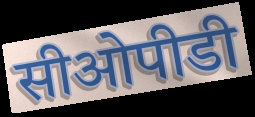
सीओपीडी